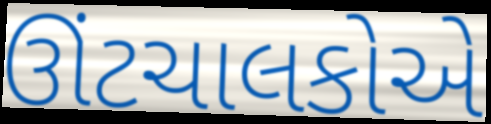
ઊંટચાલકોએ